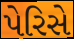
પેરિસે